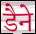
डैने